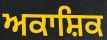
ਅਕਾਸ਼ਿਕ